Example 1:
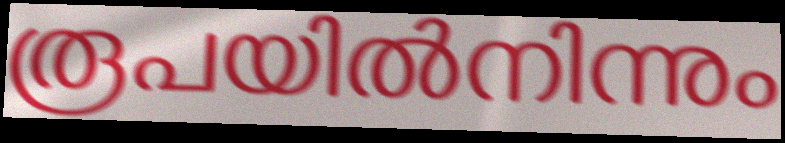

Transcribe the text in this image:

രൂപയിൽനിന്നും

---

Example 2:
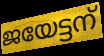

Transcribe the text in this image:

ജയേട്ടന്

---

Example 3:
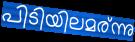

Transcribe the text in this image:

പിടിയിലമര്ന്നു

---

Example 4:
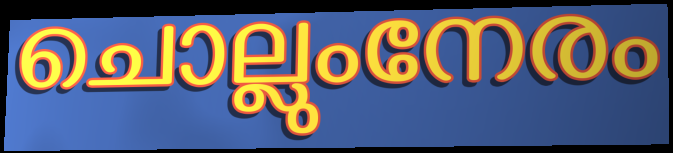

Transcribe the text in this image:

ചൊല്ലുംനേരം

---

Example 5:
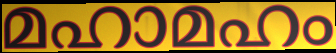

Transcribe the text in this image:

മഹാമഹം